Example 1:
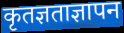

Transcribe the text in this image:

कृतज्ञताज्ञापन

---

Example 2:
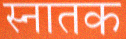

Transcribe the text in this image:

स्नातक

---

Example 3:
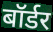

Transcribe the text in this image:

बॉर्डर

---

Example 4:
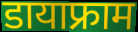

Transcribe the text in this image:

डायाफ्राम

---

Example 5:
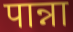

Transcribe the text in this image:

पान्ना